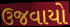
ઉજવાયો